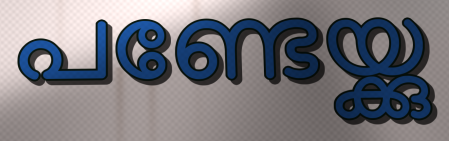
പണ്ടേയ്ക്കു